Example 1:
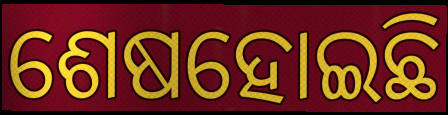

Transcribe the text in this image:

ଶେଷହୋଇଛି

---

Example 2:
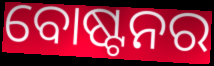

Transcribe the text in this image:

ବୋଷ୍ଟନର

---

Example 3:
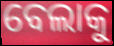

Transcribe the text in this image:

ବେଲାକୁ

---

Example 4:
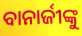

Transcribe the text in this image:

ବାନାର୍ଜୀଙ୍କୁ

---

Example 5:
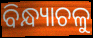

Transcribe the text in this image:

ବିନ୍ଧ୍ୟାଚଳୁ